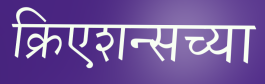
क्रिएशन्सच्या